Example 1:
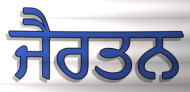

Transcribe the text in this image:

ਜੈਰਤਨ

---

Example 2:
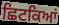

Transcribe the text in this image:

ਛਿਟਕਿਆਂ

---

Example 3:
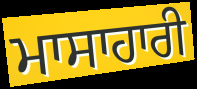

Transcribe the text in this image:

ਮਾਸਾਹਾਰੀ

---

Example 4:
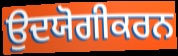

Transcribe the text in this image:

ਉਦਯੋਗੀਕਰਨ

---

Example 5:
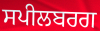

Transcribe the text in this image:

ਸਪੀਲਬਰਗ